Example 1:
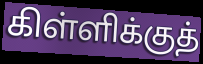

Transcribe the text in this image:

கிள்ளிக்குத்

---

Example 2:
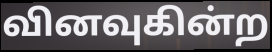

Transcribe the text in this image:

வினவுகின்ற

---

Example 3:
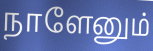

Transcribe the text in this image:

நாளேனும்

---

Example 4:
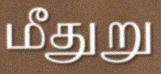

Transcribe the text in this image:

மீதுறு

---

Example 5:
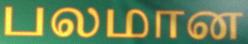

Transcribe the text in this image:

பலமான